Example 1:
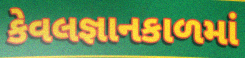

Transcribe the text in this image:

કેવલજ્ઞાનકાળમાં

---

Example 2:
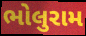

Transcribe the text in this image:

ભોલુરામ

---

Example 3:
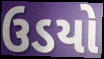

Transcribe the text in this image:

ઉડયો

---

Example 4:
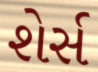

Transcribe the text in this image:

શેર્સ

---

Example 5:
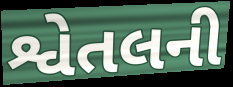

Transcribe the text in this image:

શ્વેતલની